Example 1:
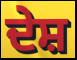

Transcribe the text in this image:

ਦੇਸ਼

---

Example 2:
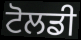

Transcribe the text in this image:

ਟੋਲਡੀ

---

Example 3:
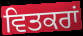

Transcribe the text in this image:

ਵਿਤਕਰਾਂ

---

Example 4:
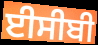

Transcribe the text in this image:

ਈਸੀਬੀ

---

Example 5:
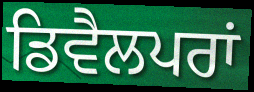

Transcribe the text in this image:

ਡਿਵੈਲਪਰਾਂ